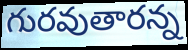
గురవుతారన్న